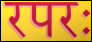
रपरः